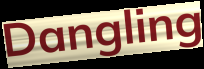
Dangling